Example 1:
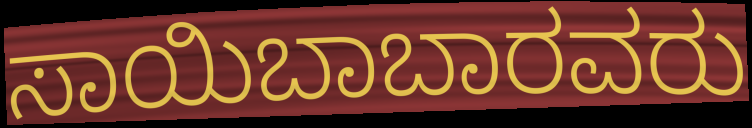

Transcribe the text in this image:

ಸಾಯಿಬಾಬಾರವರು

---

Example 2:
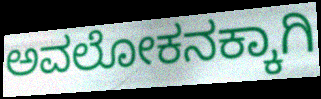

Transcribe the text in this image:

ಅವಲೋಕನಕ್ಕಾಗಿ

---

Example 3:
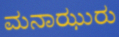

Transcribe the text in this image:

ಮನಾಝುರು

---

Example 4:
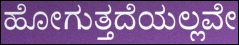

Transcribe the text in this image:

ಹೋಗುತ್ತದೆಯಲ್ಲವೇ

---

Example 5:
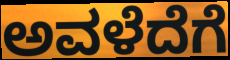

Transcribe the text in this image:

ಅವಳೆದೆಗೆ